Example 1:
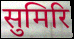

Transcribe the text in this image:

सुमिरि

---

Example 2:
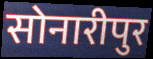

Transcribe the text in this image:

सोनारीपुर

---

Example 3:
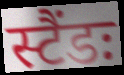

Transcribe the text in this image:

स्टैंडः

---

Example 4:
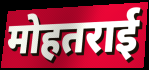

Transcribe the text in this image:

मोहतराई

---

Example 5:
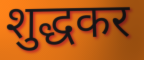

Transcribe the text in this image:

शुद्धकर